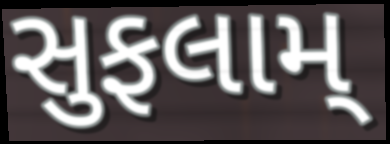
સુફલામ્